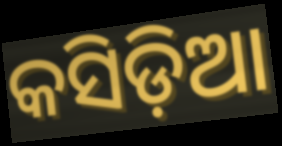
କସିଡ଼ିଆ